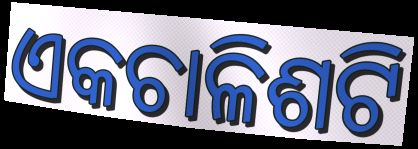
ଏକଚାଳିଶଟି